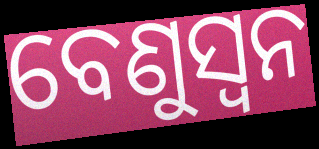
ବେଣୁସ୍ଵନ